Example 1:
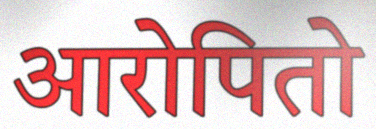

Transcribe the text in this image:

आरोपितो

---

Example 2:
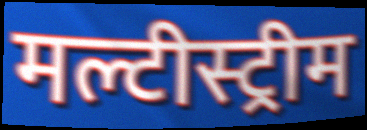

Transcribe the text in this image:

मल्टीस्ट्रीम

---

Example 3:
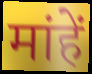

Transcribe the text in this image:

मांहें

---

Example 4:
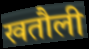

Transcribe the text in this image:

खतौली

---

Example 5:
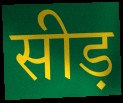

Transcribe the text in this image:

सीड़